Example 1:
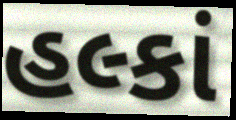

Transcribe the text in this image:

હલ્કાં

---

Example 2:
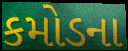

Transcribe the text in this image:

કમોડના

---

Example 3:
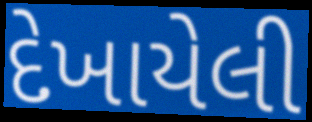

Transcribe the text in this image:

દેખાયેલી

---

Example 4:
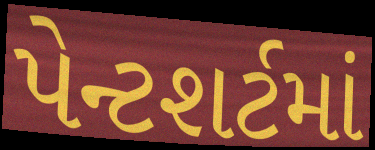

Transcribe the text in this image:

પેન્ટશર્ટમાં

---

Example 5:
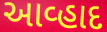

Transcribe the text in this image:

આવ્હાદ